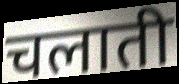
चलाती